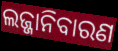
ଲଜ୍ଜାନିବାରଣ